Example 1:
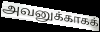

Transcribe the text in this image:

அவனுக்காகக்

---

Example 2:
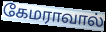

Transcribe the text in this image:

கேமராவால்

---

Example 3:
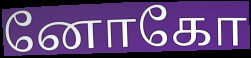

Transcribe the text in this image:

னோகோ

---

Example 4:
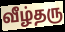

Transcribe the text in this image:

வீழ்தரு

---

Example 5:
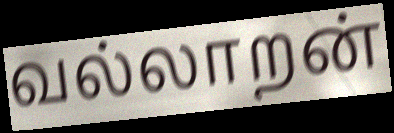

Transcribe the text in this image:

வல்லாறன்